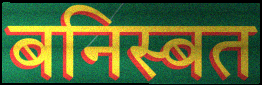
बनिस्‍बत